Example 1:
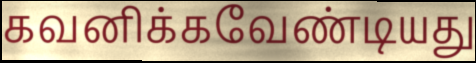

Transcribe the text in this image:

கவனிக்கவேண்டியது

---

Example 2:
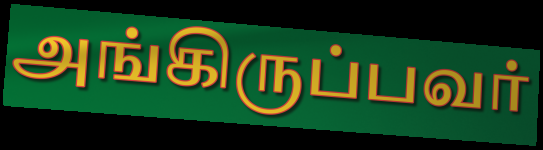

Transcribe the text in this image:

அங்கிருப்பவர்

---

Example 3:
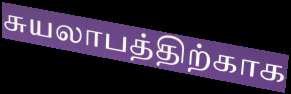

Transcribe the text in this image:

சுயலாபத்திற்காக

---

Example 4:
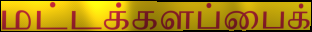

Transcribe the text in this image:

மட்டக்களப்பைக்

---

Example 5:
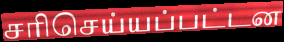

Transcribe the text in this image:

சரிசெய்யப்பட்டன